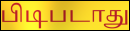
பிடிபடாது